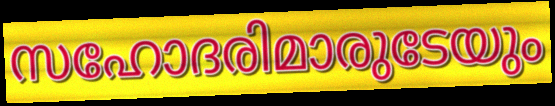
സഹോദരിമാരുടേയും